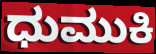
ಧುಮುಕಿ